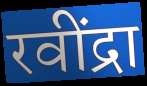
रवींद्रा